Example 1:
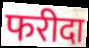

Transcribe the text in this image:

फरीदा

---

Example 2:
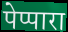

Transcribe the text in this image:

पेप्पारा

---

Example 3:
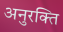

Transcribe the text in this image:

अनुरक्ति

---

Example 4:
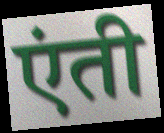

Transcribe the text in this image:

एंती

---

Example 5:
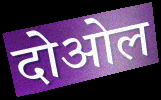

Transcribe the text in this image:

दोओल